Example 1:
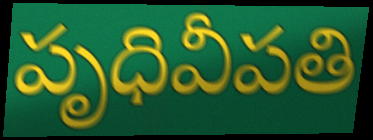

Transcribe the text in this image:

పృధివీపతి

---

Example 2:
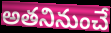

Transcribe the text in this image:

అతనినుంచే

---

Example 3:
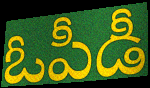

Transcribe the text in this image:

ఓపీడీ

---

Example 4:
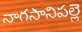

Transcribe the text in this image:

నాగసానిపల్లె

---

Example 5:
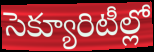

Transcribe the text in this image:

సెక్యూరిటీల్లో